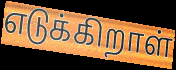
எடுக்கிறாள்